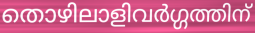
തൊഴിലാളിവർഗ്ഗത്തിന്